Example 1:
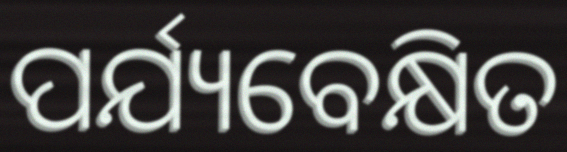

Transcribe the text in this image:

ପର୍ଯ୍ୟବେକ୍ଷିତ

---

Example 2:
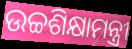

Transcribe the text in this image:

ଉଚ୍ଚଶିକ୍ଷାମନ୍ତ୍ରୀ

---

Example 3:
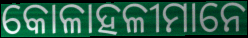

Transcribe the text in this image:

କୋଳାହଳୀମାନେ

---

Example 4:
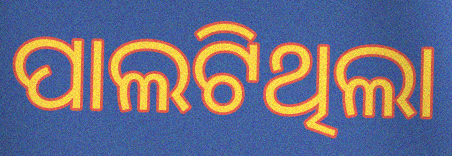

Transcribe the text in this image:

ପାଲଟିଥିଲା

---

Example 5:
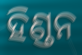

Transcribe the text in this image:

ହିଣ୍ଡନ